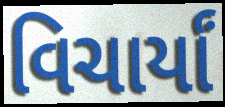
વિચાર્યાં